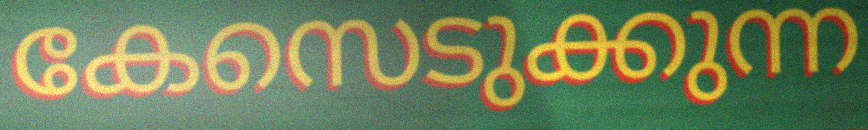
കേസെടുക്കുന്ന